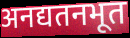
अनद्यतनभूत